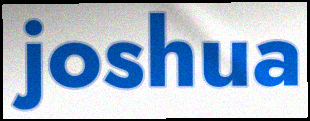
joshua